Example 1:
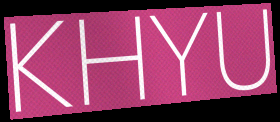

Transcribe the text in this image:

KHYU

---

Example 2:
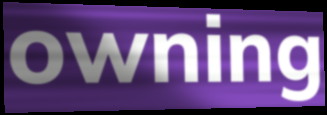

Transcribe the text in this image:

owning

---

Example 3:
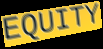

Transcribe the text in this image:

EQUITY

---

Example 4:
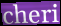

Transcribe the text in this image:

cheri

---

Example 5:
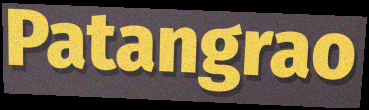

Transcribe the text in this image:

Patangrao